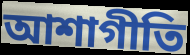
আশাগীতি